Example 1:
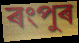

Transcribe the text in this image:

ৰংপুৰ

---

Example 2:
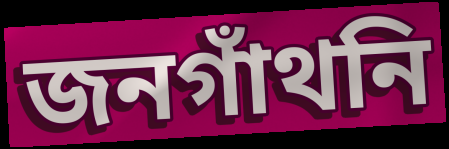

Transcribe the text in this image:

জনগাঁথনি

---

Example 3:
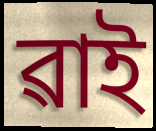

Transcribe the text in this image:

ৱাই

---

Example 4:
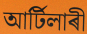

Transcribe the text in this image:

আৰ্টিলাৰী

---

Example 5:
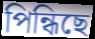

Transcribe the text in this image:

পিন্ধিছে